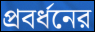
প্রবর্ধনের